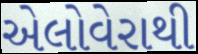
એલોવેરાથી